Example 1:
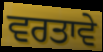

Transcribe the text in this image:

ਵਰਤਾਵੇ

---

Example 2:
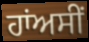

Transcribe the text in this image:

ਹਾਂਅਸੀਂ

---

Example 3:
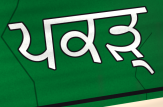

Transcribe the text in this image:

ਪਕੜ੍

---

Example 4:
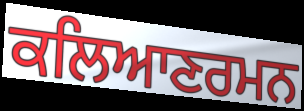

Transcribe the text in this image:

ਕਲਿਆਣਰਮਨ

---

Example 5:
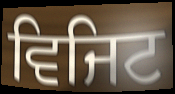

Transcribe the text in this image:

ਵਿਜਿਟ